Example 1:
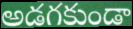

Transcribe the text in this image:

అడగకుండా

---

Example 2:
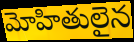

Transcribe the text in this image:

మోహితులైన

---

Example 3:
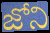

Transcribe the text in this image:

జోని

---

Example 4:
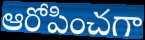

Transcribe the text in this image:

ఆరోపించగా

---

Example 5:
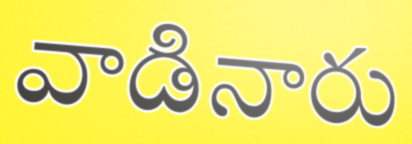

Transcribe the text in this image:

వాడినారు